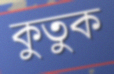
কুতুক